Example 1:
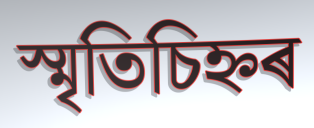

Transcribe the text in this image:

স্মৃতিচিহ্নৰ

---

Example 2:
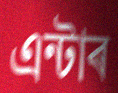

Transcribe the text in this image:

এন্টাৰ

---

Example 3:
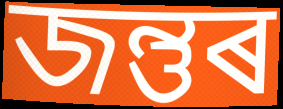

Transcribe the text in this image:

জন্তুৰ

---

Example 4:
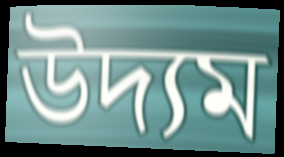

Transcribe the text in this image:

উদ্যম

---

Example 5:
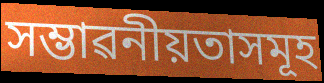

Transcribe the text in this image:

সম্ভাৱনীয়তাসমূহ